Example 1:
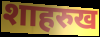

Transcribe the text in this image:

शाहरुख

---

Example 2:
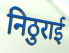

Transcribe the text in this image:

निठुराई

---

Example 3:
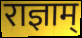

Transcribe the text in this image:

राज्ञाम्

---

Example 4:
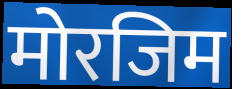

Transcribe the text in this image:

मोरजिम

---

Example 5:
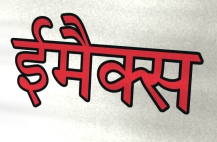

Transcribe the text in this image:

ईमैक्स